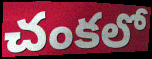
చంకలో